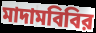
মাদামবিবির